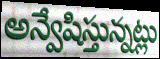
అన్వేషిస్తున్నట్లు